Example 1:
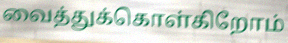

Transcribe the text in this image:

வைத்துக்கொள்கிறோம்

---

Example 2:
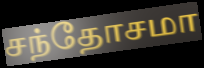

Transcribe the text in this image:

சந்தோசமா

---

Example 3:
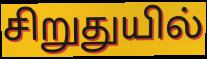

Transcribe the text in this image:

சிறுதுயில்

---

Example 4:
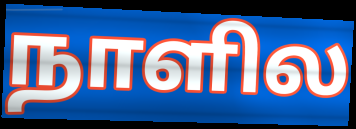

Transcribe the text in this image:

நாளில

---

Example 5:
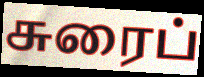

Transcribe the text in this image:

சுரைப்